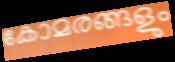
കോമരങ്ങളും